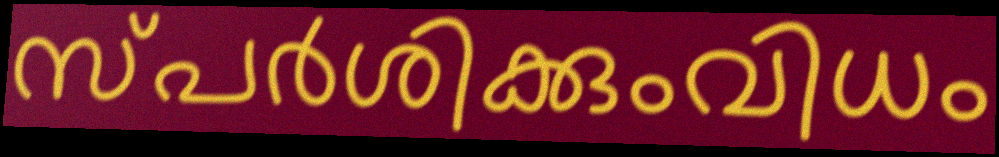
സ്പർശിക്കുംവിധം